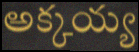
అక్కయ్య